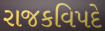
રાજકવિપદે